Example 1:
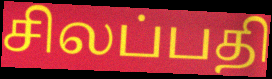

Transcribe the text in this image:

சிலப்பதி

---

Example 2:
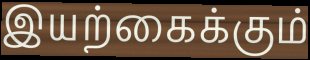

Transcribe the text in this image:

இயற்கைக்கும்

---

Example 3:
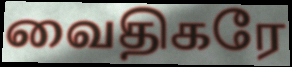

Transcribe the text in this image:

வைதிகரே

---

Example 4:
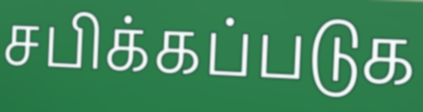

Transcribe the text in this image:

சபிக்கப்படுக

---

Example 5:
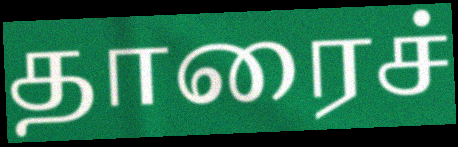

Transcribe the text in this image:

தாரைச்